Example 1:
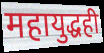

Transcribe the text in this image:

महायुद्धही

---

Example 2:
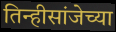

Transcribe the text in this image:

तिन्हीसांजेच्या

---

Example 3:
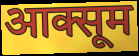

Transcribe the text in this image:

आक्सूम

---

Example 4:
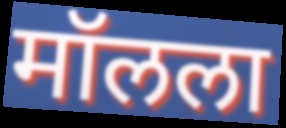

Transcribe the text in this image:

मॉलला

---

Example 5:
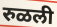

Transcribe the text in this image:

रुळली